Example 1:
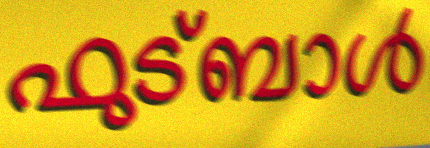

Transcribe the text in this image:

ഫുട്ബാൾ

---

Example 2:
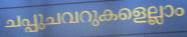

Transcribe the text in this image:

ചപ്പുചവറുകളെല്ലാം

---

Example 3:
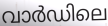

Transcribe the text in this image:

വാർഡിലെ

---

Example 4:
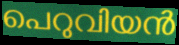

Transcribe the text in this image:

പെറുവിയൻ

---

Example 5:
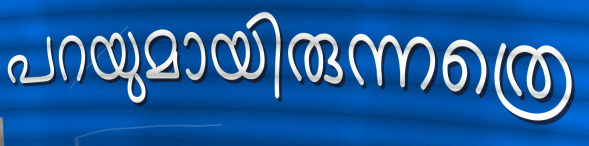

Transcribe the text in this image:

പറയുമായിരുന്നത്രെ